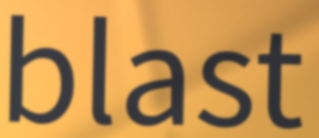
blast